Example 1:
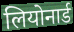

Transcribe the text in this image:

लियोनार्ड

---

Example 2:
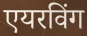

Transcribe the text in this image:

एयरविंग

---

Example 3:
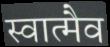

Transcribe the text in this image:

स्वात्मैव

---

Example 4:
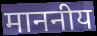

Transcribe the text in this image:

माननीय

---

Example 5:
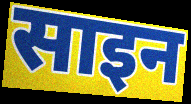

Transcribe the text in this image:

साइन